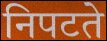
निपटते